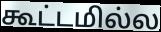
கூட்டமில்ல